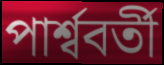
পাৰ্শ্ববৰ্তী